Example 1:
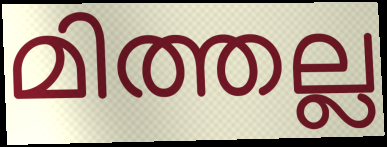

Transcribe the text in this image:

മിത്തല്ല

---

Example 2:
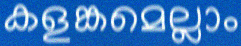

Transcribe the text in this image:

കളങ്കമെല്ലാം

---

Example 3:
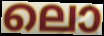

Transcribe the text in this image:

ലൊ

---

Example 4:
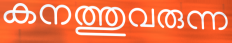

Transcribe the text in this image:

കനത്തുവരുന്ന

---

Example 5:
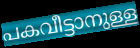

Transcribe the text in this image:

പകവീട്ടാനുള്ള